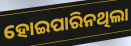
ହୋଇପାରିନଥିଲା